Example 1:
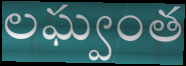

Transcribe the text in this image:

లఘ్వంత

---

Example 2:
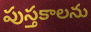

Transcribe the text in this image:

పుస్తకాలను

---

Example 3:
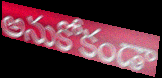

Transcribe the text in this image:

అనుకోకండా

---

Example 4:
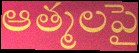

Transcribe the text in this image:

ఆత్మలపై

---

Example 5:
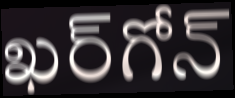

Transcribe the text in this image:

ఖర్‌గోన్